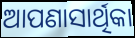
ଆପଣାସାର୍ଥିକା